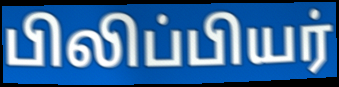
பிலிப்பியர்